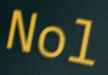
Nol